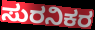
ಸುರನಿಕರ